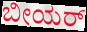
ಬೀಯರ್